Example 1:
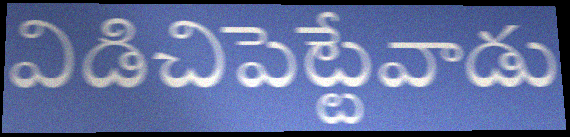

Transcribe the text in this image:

విడిచిపెట్టేవాడు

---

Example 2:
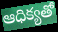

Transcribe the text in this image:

ఆధిక్యతో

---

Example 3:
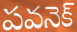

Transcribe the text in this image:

పవనెక్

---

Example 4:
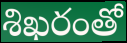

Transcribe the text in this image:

శిఖరంతో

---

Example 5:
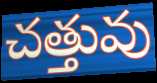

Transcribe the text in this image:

చత్తువు